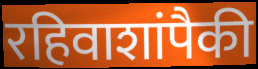
रहिवाशांपैकी